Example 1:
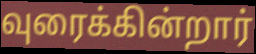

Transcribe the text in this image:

வுரைக்கின்றார்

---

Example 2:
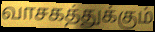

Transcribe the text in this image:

வாசகத்துக்கும்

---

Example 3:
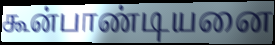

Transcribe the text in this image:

கூன்பாண்டியனை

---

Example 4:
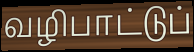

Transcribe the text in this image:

வழிபாட்டுப்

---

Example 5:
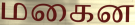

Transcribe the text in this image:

மகைன